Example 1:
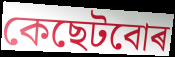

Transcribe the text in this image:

কেছেটবোৰ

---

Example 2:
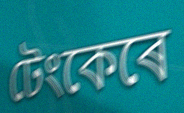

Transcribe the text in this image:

টেংকেৰে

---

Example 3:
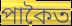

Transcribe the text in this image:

পাকৈত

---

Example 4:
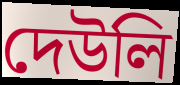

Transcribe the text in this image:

দেউলি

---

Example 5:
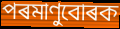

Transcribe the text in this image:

পৰমাণুবোৰক